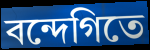
বন্দেগিতে